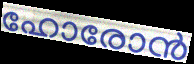
ഹോരോൻ